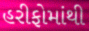
હરીફોમાંથી